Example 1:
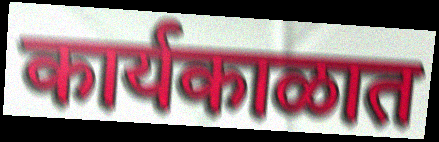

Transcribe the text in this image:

कार्यकाळात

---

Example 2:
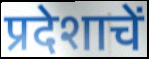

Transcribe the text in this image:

प्रदेशाचें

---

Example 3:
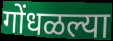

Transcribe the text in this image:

गोंधळल्या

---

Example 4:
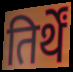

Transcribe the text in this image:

तिर्थें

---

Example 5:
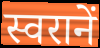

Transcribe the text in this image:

स्वरानें